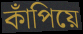
কাঁপিয়ে